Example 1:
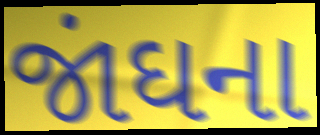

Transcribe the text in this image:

જાંઘના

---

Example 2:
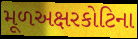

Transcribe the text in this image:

મૂળઅક્ષરકોટિના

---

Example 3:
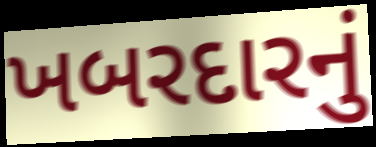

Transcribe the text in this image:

ખબરદારનું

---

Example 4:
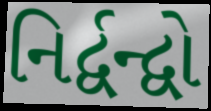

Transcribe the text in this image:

નિર્દ્વન્દ્વો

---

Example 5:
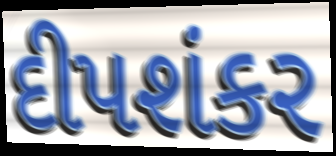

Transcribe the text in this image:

દીપશંકર